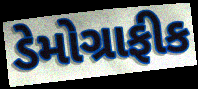
ડેમોગ્રાફીક